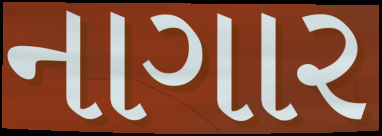
નાગાર